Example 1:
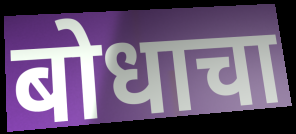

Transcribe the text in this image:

बोधाचा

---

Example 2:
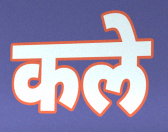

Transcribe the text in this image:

कले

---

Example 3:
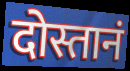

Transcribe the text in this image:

दोस्तानं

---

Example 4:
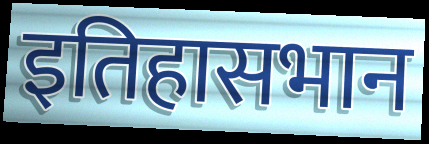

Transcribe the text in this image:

इतिहासभान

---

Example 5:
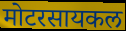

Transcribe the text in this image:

मोटरसायकल